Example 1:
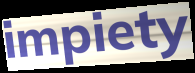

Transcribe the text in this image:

impiety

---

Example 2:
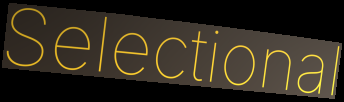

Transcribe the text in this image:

Selectional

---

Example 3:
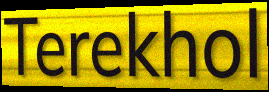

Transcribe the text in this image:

Terekhol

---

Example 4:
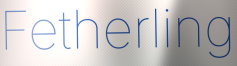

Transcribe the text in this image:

Fetherling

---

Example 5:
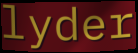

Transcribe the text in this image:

lyder